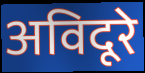
अविदूरे